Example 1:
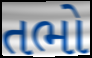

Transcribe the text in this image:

તભો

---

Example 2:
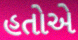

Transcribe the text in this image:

હતોએ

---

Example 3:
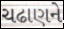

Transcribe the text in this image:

ચઢાણને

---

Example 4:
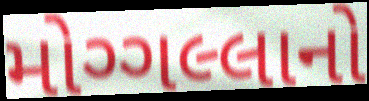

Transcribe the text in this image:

મોગ્ગલ્લાનો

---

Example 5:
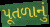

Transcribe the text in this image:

પૂતળાનું